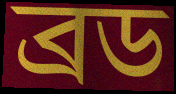
ব্ৰড